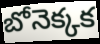
బోనెక్కక